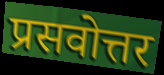
प्रसवोत्तर